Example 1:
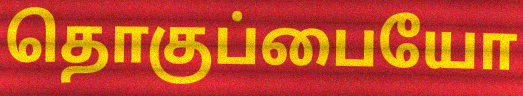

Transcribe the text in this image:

தொகுப்பையோ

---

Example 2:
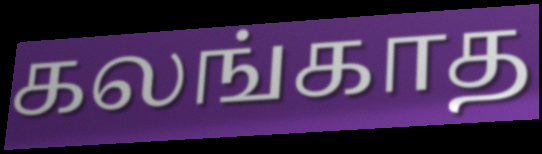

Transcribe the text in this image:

கலங்காத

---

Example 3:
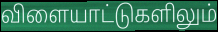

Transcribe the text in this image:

விளையாட்டுகளிலும்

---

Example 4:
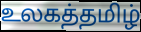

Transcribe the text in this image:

உலகத்தமிழ்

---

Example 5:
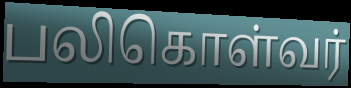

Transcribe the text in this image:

பலிகொள்வர்